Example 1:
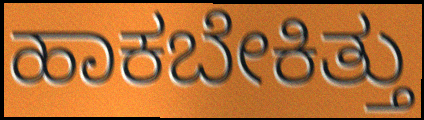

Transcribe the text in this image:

ಹಾಕಬೇಕಿತ್ತು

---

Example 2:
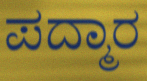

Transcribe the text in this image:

ಪದ್ಮಾರ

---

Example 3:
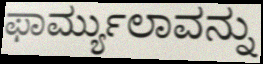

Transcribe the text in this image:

ಫಾರ್ಮ್ಯುಲಾವನ್ನು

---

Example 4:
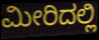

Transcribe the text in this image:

ಮೀರಿದಲ್ಲಿ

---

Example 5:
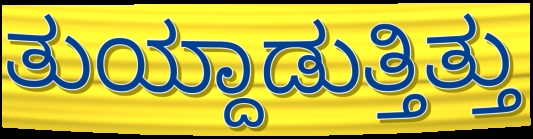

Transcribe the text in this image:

ತುಯ್ದಾಡುತ್ತಿತ್ತು